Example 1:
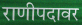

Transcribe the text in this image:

राणीपदावर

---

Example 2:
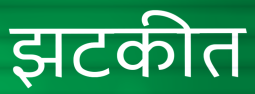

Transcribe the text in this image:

झटकीत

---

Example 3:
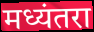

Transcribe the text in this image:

मध्यंतरा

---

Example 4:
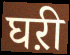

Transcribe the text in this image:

घऱी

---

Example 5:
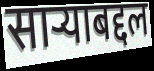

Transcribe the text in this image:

साऱ्याबद्दल